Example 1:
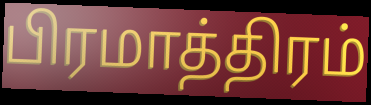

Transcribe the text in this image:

பிரமாத்திரம்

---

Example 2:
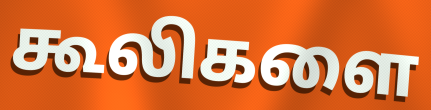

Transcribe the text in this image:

கூலிகளை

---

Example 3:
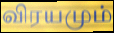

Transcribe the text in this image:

விரயமும்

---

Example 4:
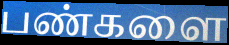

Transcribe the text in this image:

பண்களை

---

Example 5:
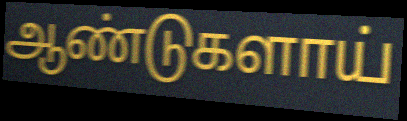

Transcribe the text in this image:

ஆண்டுகளாய்